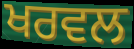
ਖਰਵਲ